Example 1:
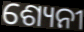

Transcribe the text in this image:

ଶ୍ୟେନୀ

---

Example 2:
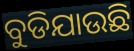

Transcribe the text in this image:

ବୁଡିଯାଉଛି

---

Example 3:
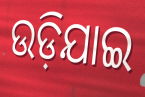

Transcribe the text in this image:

ଉଡ଼ିଯାଇ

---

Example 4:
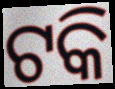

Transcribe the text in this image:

ଟକି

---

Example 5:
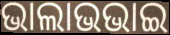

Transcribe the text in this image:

ଭାଲାଭଭାଇ